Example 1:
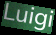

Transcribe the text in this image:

Luigi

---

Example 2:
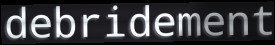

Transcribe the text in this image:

debridement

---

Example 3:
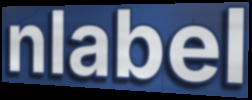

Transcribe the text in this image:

nlabel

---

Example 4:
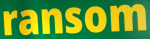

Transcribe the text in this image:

ransom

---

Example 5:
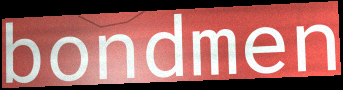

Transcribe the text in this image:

bondmen